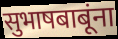
सुभाषबाबूंना